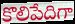
కొలిపేదిగా